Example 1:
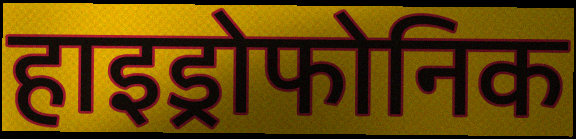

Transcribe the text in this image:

हाइड्रोफोनिक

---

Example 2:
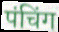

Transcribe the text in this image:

पंचिंग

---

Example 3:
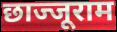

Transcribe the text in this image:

छाज्जूराम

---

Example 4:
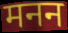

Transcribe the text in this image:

मनन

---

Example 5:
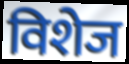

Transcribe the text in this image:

विशेज